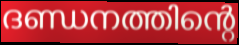
ദണ്ഡനത്തിന്റെ